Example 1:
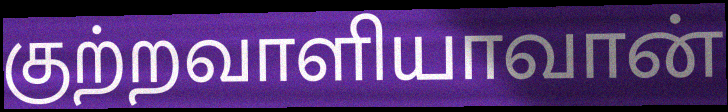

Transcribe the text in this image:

குற்றவாளியாவான்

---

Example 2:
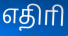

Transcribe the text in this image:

எதிரி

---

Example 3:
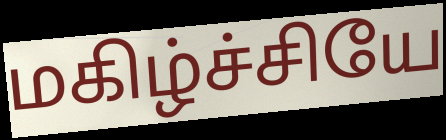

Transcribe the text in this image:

மகிழ்ச்சியே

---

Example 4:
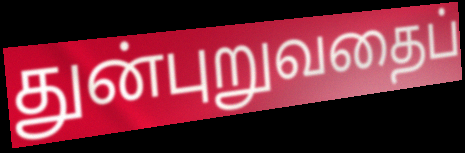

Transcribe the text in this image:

துன்புறுவதைப்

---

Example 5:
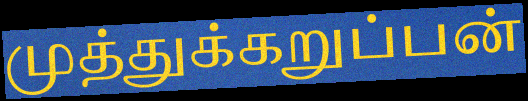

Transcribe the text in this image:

முத்துக்கறுப்பன்